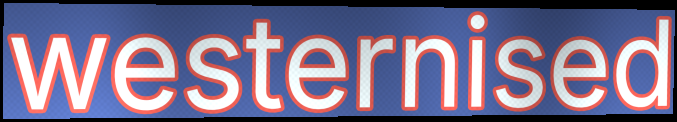
westernised